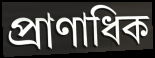
প্রাণাধিক